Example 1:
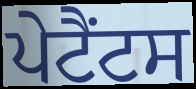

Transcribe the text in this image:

ਪੇਟੈਂਟਸ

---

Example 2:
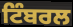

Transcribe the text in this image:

ਟਿੰਬਰਲ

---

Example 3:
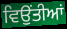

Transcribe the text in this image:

ਵਿਉਂਤੀਆਂ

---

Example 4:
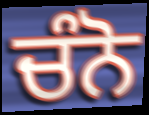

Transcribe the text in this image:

ਚੰਨੋ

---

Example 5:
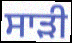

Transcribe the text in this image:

ਸਾੜੀ